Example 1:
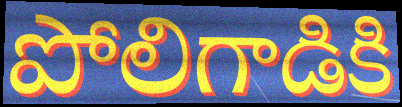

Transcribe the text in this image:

పోలిగాడికి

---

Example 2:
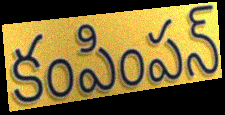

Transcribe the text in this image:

కంపింపన్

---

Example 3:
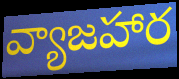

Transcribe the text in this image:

వ్యాజహార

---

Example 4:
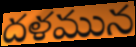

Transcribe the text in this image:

దళమున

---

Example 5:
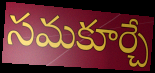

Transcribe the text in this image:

సమకూర్చే